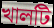
খালটি